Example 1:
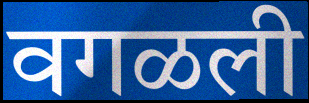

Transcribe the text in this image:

वगळली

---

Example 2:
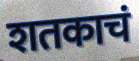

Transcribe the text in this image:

शतकाचं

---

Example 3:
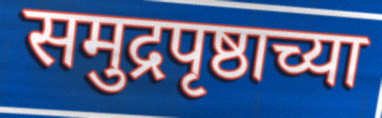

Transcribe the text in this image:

समुद्रपृष्ठाच्या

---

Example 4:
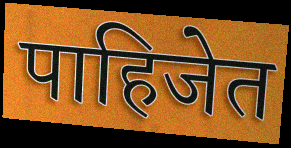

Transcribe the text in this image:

पाहिजेत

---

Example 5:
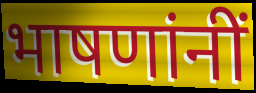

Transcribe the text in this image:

भाषणांनीं